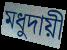
মধুদায়ী